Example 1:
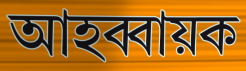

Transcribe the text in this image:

আহব্বায়ক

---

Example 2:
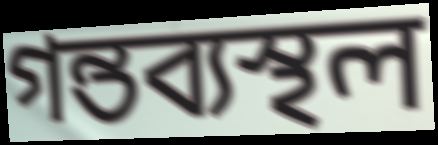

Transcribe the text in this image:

গন্তব্যস্থল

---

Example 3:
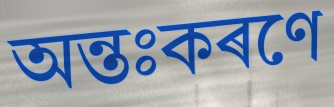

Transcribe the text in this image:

অন্তঃকৰণে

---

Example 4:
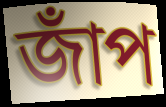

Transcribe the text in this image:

জাঁপ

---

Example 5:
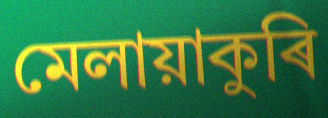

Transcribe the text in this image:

মেলায়াকুৰি